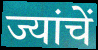
ज्यांचें